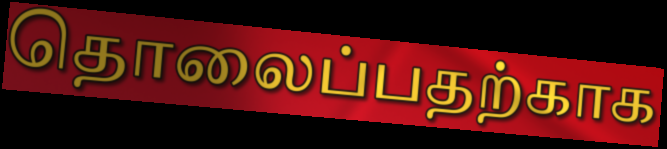
தொலைப்பதற்காக